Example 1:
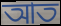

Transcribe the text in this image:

আত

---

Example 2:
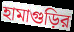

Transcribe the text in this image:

হামাগুড়ির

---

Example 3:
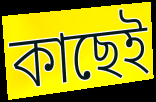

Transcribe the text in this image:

কাছেই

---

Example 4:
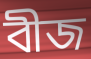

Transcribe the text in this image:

বীজ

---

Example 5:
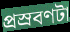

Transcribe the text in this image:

প্রস্রবণটা